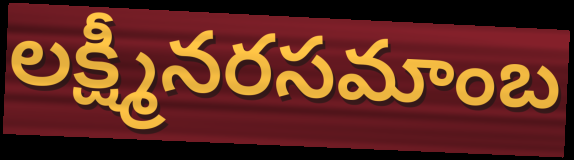
లక్ష్మీనరసమాంబ